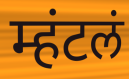
म्हंटलं